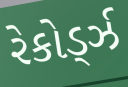
રેકોર્ડ્ઝ